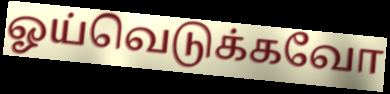
ஓய்வெடுக்கவோ